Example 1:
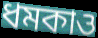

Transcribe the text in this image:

ধমকাও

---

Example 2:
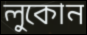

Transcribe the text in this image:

লুকোন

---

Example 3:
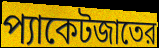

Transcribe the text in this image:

প্যাকেটজাতের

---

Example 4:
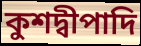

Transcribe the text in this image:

কুশদ্বীপাদি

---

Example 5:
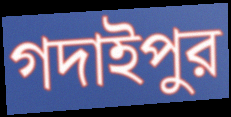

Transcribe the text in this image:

গদাইপুর